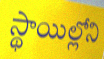
స్థాయిల్లోని